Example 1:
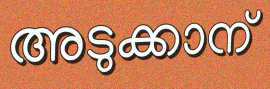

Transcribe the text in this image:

അടുക്കാന്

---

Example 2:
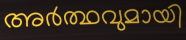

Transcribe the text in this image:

അർത്ഥവുമായി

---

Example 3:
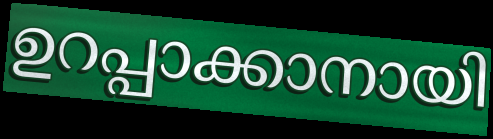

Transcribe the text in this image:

ഉറപ്പാക്കാനായി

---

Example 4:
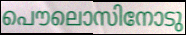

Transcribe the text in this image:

പൌലൊസിനോടു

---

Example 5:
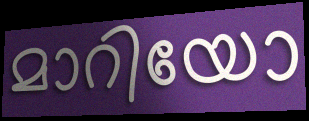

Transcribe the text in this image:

മാറിയോ